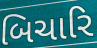
બિચારિ